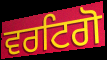
ਵਰਟਿਗੋ